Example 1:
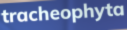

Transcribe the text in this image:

tracheophyta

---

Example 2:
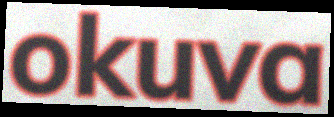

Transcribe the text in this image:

okuva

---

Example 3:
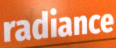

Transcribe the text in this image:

radiance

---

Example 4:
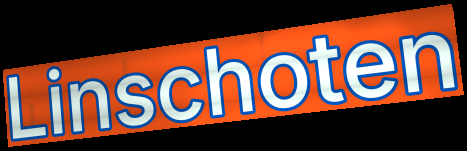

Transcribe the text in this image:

Linschoten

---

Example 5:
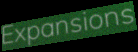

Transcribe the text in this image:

Expansions